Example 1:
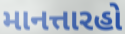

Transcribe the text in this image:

માનત્તારહો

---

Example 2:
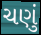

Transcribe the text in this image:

ચણું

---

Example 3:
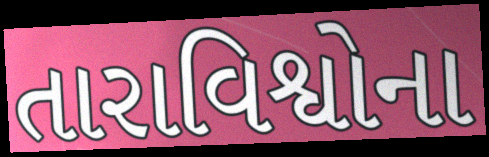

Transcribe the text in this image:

તારાવિશ્વોના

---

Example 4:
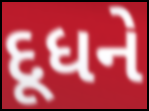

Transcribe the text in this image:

દૂધને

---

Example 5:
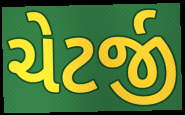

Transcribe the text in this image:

ચેટર્જી